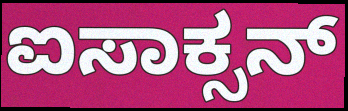
ಐಸಾಕ್ಸನ್